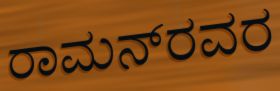
ರಾಮನ್‌ರವರ